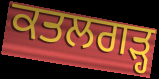
ਕਤਲਗੜ੍ਹ